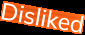
Disliked